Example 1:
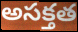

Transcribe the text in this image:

అసక్తత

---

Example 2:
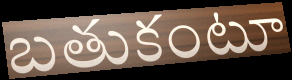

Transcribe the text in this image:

బతుకంటూ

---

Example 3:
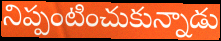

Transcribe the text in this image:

నిప్పంటించుకున్నాడు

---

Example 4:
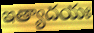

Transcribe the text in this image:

ఇత్యాదయః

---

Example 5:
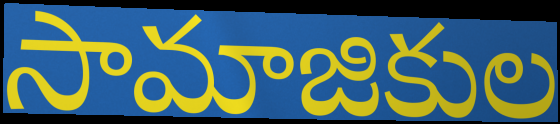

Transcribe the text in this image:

సామాజికుల